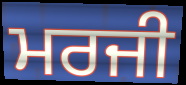
ਮਰਜੀ